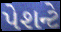
પેશન્ટે